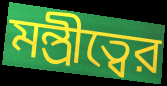
মন্ত্রীত্বের